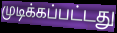
முடிக்கப்பட்டது